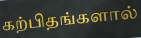
கற்பிதங்களால்